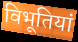
विभूतियां